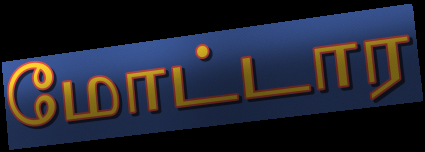
மோட்டார